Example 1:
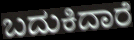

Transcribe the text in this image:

ಬದುಕಿದಾರೆ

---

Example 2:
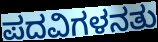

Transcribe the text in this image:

ಪದವಿಗಳನತು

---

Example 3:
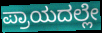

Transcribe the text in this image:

ಪ್ರಾಯದಲ್ಲೇ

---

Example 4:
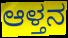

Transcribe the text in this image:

ಆಳ್ತನ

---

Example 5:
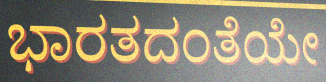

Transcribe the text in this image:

ಭಾರತದಂತೆಯೇ